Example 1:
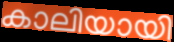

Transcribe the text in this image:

കാലിയായി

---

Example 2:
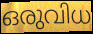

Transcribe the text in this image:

ഒരുവിധ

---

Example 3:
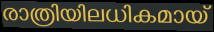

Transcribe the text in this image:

രാത്രിയിലധികമായ്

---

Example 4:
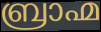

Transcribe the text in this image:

ബ്രാഹ്മ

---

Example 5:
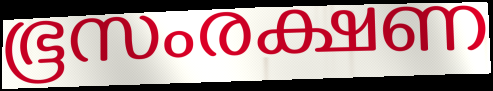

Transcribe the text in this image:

ഭൂസംരക്ഷണ